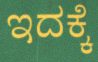
ಇದಕ್ಕೆ